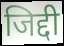
जिद्दी